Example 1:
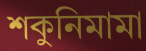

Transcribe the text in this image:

শকুনিমামা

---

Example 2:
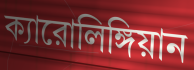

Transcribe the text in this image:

ক্যারোলিঙ্গিয়ান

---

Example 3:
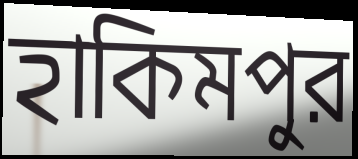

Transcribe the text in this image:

হাকিমপুর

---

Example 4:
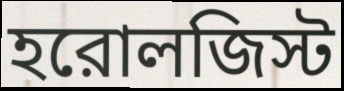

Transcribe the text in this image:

হরোলজিস্ট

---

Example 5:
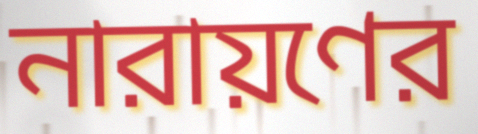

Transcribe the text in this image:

নারায়ণের